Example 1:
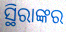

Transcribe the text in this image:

ସ୍ଥିରାଙ୍କର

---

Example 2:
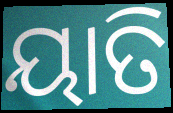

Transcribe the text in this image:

ୟାତି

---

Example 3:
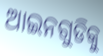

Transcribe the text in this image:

ଆଇନଗୁଡିକୁ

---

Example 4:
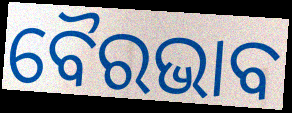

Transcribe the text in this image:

ବୈରଭାବ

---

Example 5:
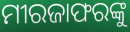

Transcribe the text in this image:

ମୀରଜାଫରଙ୍କୁ